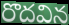
రొదవిన